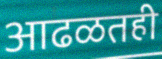
आढळतही